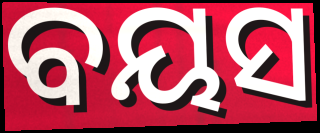
ବୟସ